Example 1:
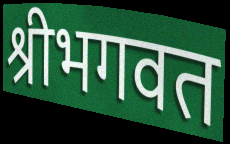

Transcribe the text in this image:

श्रीभगवत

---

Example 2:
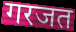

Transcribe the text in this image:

गरजत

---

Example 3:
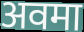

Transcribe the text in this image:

अवमा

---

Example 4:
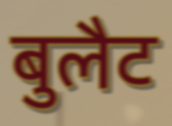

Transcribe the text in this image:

बुलैट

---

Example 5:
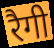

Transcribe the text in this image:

रैगी